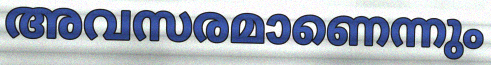
അവസരമാണെന്നും